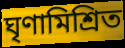
ঘৃণামিশ্রিত